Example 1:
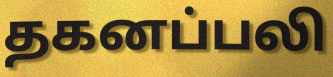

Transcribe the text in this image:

தகனப்பலி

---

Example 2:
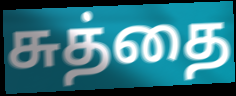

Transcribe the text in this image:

சுத்தை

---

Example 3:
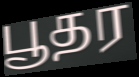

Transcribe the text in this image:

பூதர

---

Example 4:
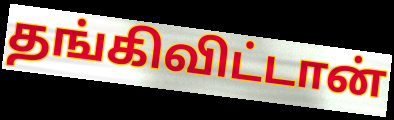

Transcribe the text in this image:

தங்கிவிட்டான்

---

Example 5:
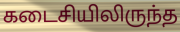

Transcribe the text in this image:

கடைசியிலிருந்த